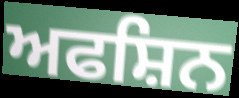
ਅਫਸ਼ਿਨ